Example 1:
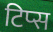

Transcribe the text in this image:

टिप्‍स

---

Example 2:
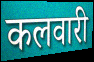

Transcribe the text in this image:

कलवारी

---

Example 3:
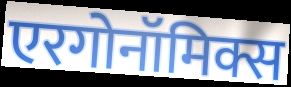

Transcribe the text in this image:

एरगोनॉमिक्स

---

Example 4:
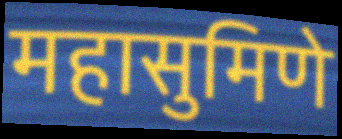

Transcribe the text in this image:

महासुमिणे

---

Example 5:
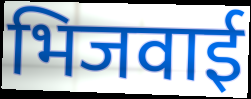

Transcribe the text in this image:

भिजवाई